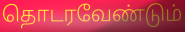
தொடரவேண்டும்